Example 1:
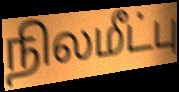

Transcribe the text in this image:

நிலமீட்பு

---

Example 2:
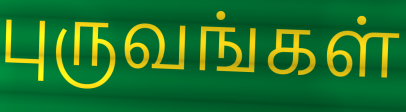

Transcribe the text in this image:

புருவங்கள்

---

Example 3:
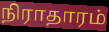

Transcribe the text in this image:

நிராதாரம்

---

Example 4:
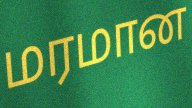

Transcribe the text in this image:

மரமான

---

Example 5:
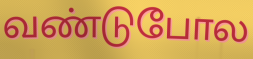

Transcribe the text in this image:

வண்டுபோல